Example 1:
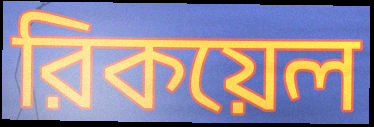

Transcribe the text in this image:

রিকয়েল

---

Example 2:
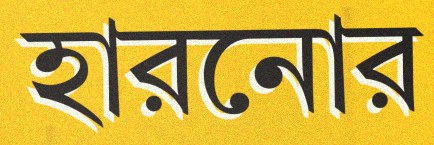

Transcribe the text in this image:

হারনোর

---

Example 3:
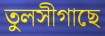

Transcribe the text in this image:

তুলসীগাছে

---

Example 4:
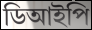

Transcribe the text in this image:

ডিআইপি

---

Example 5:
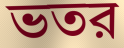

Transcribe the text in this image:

ভতর